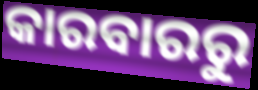
କାରବାରରୁ